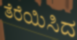
ತೆರೆಯಿಸಿದ